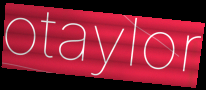
otaylor